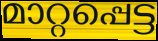
മാറ്റപ്പെട്ട